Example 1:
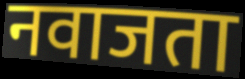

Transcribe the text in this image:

नवाजता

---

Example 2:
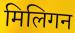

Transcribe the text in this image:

मिलिगन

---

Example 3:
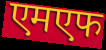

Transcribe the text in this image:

एमएफ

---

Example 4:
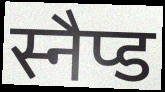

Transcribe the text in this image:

स्नैप्ड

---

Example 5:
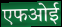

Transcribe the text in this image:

एफओई